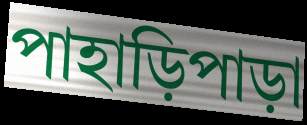
পাহাড়িপাড়া